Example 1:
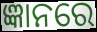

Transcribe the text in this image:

ଜ୍ଞାନରେ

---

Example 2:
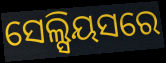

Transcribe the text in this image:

ସେଲ୍ସିୟସରେ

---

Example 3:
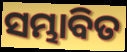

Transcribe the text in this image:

ସମ୍ଭାବିତ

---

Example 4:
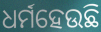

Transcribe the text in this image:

ଧର୍ମହେଉଛି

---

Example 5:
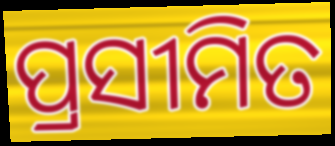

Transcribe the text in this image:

ପ୍ରସୀମିତ